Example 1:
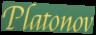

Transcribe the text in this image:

Platonov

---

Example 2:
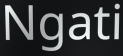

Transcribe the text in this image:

Ngati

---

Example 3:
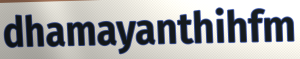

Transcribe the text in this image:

dhamayanthihfm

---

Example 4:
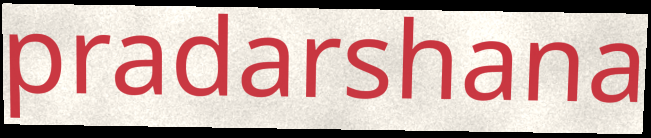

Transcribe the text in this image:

pradarshana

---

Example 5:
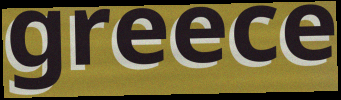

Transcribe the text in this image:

greece